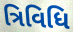
ત્રિવિધિ